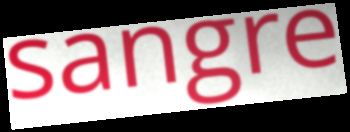
sangre